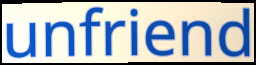
unfriend